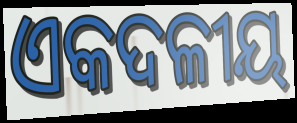
ଏକଦଳୀୟ